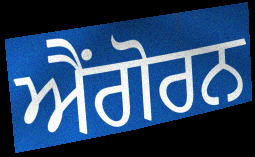
ਐਂਗੋਰਨ